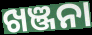
ଖଞ୍ଜନା